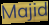
Majid